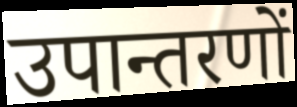
उपान्तरणों